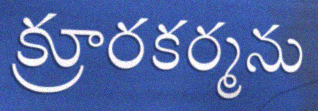
క్రూరకర్మను